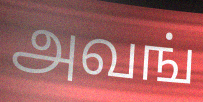
அவங்